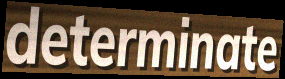
determinate